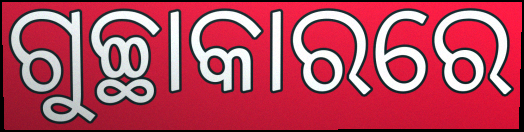
ଗୁଚ୍ଛାକାରରେ